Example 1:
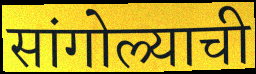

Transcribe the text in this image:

सांगोल्याची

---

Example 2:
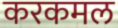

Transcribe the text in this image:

करकमल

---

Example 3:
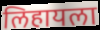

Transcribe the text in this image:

लिहायला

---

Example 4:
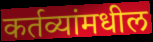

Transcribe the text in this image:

कर्तव्यांमधील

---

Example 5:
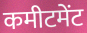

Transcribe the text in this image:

कमीटमेंट